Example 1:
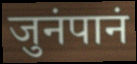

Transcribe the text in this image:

जुनंपानं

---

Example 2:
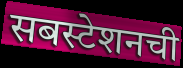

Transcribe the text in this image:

सबस्टेशनची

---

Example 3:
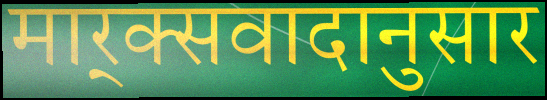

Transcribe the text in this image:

मार्क्सवादानुसार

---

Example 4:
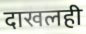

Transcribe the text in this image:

दाखलही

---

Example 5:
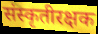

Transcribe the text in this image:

संस्कृतीरक्षक